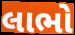
લાભો